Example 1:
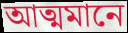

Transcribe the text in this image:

আত্মমানে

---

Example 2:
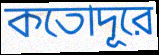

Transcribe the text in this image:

কতোদূরে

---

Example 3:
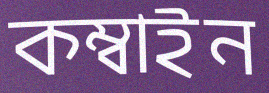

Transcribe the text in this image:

কম্বাইন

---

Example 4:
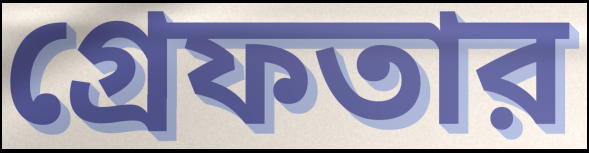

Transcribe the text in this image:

গ্রেফতার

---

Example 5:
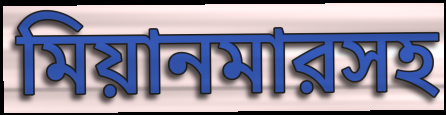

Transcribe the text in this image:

মিয়ানমারসহ